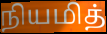
நியமித்